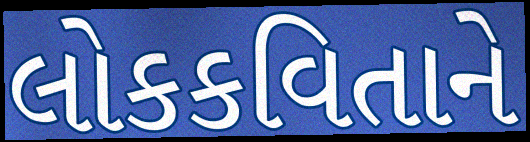
લોકકવિતાને